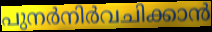
പുനർനിർവചിക്കാൻ